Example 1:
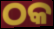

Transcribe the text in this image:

ଠକ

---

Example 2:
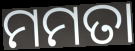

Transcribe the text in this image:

ମମତା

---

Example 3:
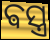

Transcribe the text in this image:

ଵସ୍ତ୍ର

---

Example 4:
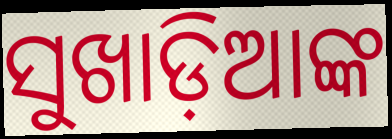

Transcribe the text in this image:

ସୁଖାଡ଼ିଆଙ୍କ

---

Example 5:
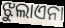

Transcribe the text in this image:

ଝୁଲାଏନା